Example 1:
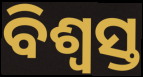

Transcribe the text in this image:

ବିଶ୍ଵସ୍ତ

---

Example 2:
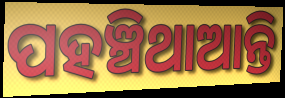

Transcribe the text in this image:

ପହଞ୍ଚିଥାଆନ୍ତି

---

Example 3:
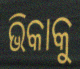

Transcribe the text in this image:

ଭିକାକୁ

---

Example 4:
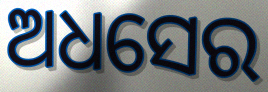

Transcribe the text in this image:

ଅଧସେର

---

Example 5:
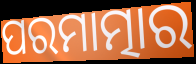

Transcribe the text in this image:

ପରମାତ୍ମାର